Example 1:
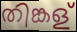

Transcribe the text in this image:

തിങ്കള്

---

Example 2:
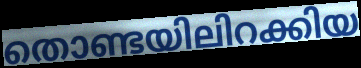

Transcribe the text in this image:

തൊണ്ടയിലിറക്കിയ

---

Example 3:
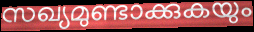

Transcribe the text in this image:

സഖ്യമുണ്ടാക്കുകയും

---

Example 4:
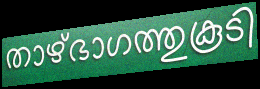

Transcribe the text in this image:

താഴ്ഭാഗത്തുകൂടി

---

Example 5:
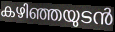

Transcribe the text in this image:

കഴിഞ്ഞയുടൻ